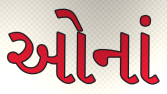
ઓનાં